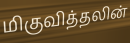
மிகுவித்தலின்